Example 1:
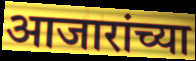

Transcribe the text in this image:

आजारांच्या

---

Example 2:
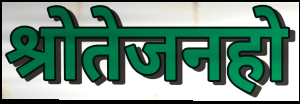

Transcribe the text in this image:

श्रोतेजनहो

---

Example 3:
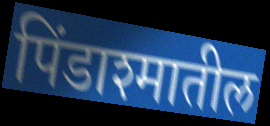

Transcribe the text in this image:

पिंडाश्मातील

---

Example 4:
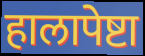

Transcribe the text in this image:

हालापेष्टा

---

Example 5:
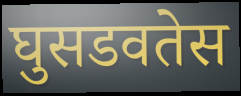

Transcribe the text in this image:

घुसडवतेस